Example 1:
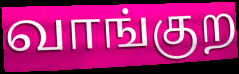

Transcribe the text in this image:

வாங்குற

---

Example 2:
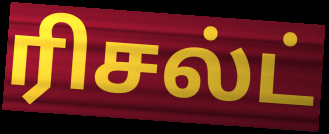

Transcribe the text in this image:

ரிசல்ட்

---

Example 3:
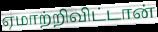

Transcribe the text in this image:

ஏமாற்றிவிட்டான்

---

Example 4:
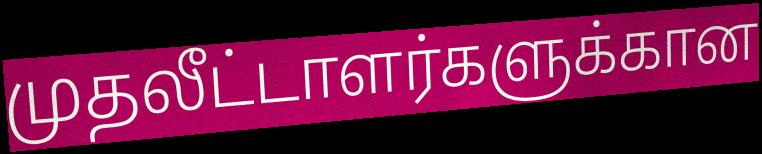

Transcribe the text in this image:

முதலீட்டாளர்களுக்கான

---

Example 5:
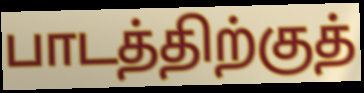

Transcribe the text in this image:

பாடத்திற்குத்